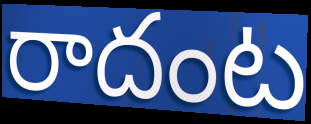
రాదంట